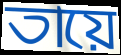
তায়ে